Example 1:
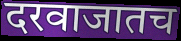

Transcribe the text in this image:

दरवाजातच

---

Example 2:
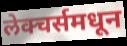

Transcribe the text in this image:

लेक्चर्समधून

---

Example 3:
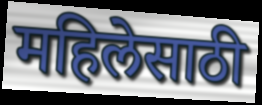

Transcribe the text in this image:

महिलेसाठी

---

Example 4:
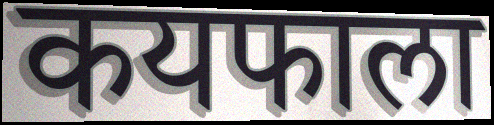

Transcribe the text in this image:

कयफाला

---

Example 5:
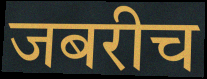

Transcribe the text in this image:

जबरीच